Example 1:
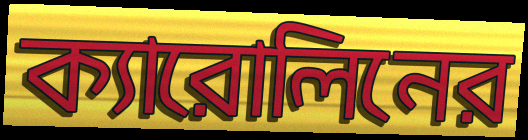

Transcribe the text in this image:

ক্যারোলিনের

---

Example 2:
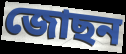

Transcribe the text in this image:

জোছন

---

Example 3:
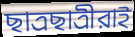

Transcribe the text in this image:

ছাত্রছাত্রীরাই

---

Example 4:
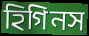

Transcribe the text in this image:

হিগিনস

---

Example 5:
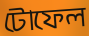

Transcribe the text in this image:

টোফেল